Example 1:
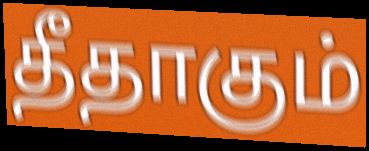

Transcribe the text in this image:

தீதாகும்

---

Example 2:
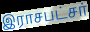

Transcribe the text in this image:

இராசபட்சர்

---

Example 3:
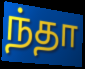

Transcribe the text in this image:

ந்தா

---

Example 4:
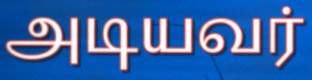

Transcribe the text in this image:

அடியவர்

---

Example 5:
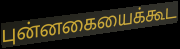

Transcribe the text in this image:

புன்னகையைக்கூட